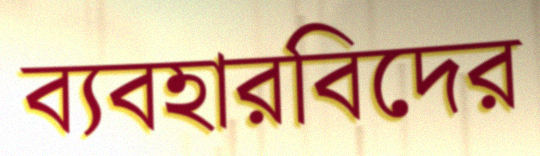
ব্যবহারবিদের